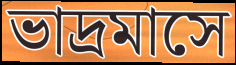
ভাদ্রমাসে